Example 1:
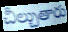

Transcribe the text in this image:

చీల్చుతారు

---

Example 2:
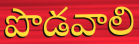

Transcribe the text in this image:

పొడవాలి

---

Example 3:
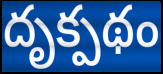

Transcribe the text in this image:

దృక్పథం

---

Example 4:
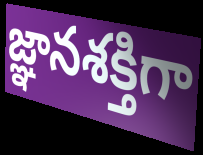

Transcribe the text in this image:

జ్ఞానశక్తిగా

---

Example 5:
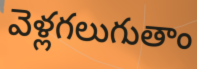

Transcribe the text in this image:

వెళ్లగలుగుతాం